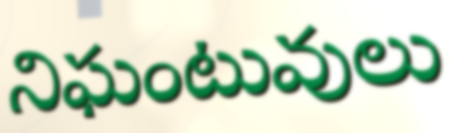
నిఘంటువులు